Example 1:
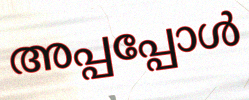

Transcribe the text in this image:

അപ്പപ്പോൾ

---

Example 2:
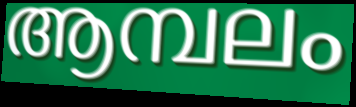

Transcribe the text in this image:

ആമ്പലം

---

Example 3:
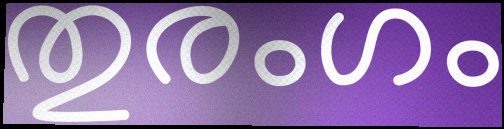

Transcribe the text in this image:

തുരംഗം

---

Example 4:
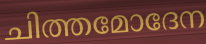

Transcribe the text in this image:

ചിത്തമോദേന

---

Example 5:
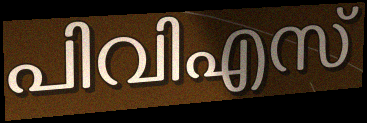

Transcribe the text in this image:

പിവിഎസ്